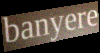
banyere